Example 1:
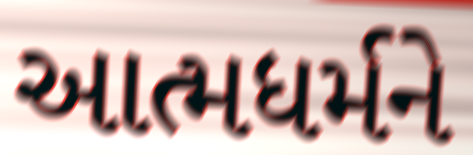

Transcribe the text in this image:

આત્મધર્મને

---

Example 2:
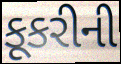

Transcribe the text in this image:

કૂકરીની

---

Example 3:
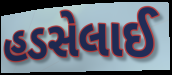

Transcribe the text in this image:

હડસેલાઈ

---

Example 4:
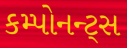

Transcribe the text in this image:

કમ્પોનન્ટ્સ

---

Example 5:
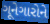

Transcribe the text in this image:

ગૂનેગારોને